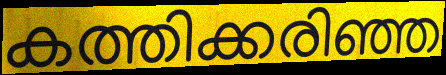
കത്തിക്കരിഞ്ഞ